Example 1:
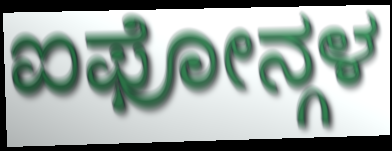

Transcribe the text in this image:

ಐಫೋನ್ಗಳ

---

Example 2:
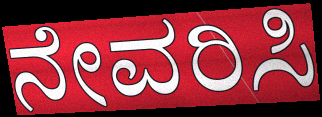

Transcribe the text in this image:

ನೇವರಿಸಿ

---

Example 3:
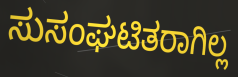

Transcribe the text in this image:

ಸುಸಂಘಟಿತರಾಗಿಲ್ಲ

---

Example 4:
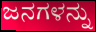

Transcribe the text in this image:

ಜನಗಳನ್ನು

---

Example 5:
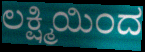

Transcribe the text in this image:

ಲಕ್ಷ್ಮಿಯಿಂದ